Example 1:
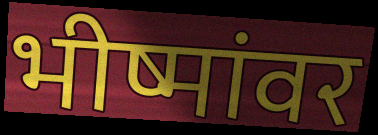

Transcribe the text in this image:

भीष्मांवर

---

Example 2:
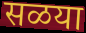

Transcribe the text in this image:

सळया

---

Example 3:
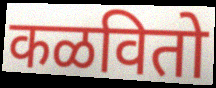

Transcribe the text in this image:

कळवितो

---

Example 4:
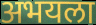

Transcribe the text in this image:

अभयला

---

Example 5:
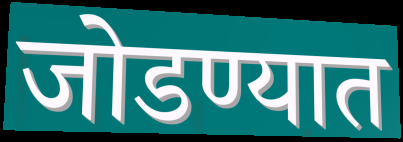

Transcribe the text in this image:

जोडण्यात